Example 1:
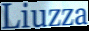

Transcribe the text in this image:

Liuzza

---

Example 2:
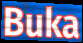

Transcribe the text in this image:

Buka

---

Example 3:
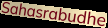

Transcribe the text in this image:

Sahasrabudhe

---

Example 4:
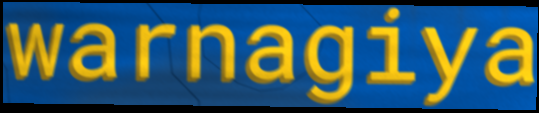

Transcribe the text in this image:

warnagiya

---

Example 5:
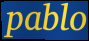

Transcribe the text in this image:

pablo